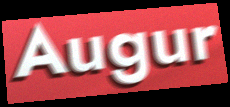
Augur